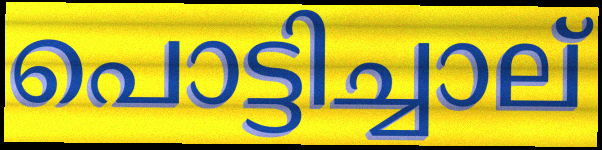
പൊട്ടിച്ചാല്